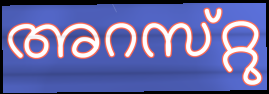
അറസ്‌റ്റു